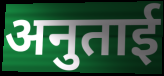
अनुताई